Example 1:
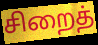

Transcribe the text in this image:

சிறைத்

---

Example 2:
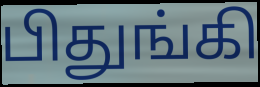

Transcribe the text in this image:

பிதுங்கி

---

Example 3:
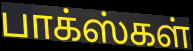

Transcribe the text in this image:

பாக்ஸ்கள்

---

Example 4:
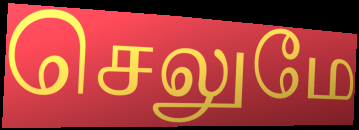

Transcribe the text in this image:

செலுமே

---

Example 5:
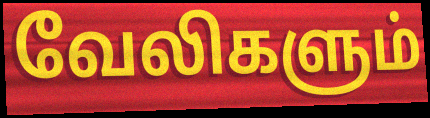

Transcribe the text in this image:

வேலிகளும்